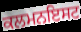
ਕਲਮਨਇਸਟ